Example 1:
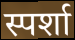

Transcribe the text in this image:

स्पर्शा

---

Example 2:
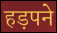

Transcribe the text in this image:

हड़पने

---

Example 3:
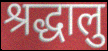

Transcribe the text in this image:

श्रद्धालु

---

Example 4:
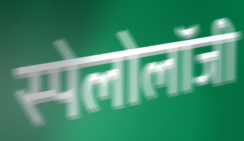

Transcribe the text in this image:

स्पेलोलॉजी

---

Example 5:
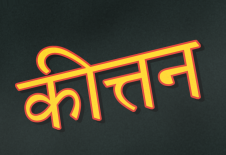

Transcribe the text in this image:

कीत्तन